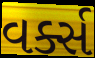
વર્ક્સ